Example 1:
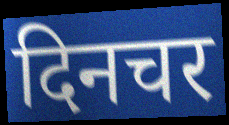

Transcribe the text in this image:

दिनचर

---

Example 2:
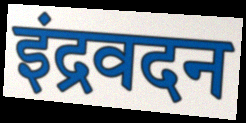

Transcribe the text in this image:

इंद्रवदन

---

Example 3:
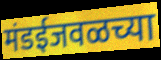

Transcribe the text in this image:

मंडईजवळच्या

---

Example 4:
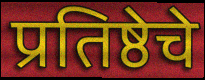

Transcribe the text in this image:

प्रतिष्ठेचे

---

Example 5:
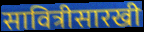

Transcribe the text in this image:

सावित्रीसारखी